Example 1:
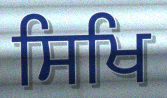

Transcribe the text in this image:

ਸਿਖਿ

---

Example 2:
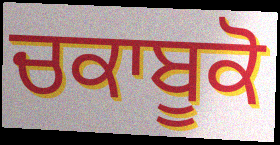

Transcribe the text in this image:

ਚਕਾਬੂਕੋ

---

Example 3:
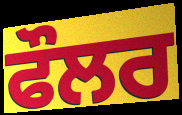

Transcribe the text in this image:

ਫੌਲਰ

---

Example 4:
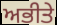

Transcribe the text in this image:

ਅਭੀਤੇ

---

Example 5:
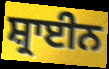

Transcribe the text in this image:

ਸ਼੍ਰਾਈਨ